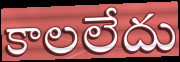
కాలలేదు